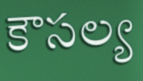
కౌసల్య